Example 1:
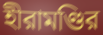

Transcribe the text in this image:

হীরামণ্ডির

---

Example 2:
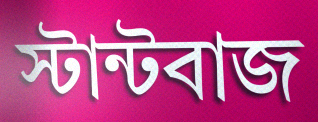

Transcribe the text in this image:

স্টান্টবাজ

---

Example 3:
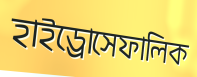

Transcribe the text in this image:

হাইড্রোসেফালিক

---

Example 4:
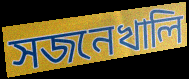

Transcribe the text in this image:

সজনেখালি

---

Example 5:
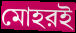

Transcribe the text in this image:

মোহরই